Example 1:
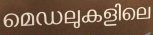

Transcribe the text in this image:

മെഡലുകളിലെ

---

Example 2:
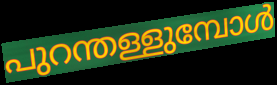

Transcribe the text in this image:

പുറന്തള്ളുമ്പോൾ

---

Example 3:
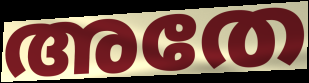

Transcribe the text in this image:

അതേ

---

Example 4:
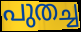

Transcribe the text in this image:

പുതച്ച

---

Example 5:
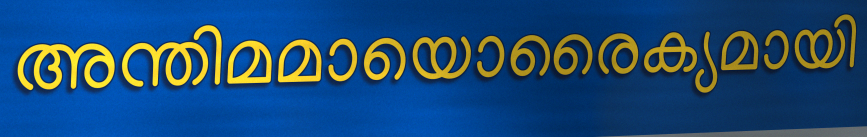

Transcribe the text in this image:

അന്തിമമായൊരൈക്യമായി